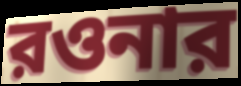
রওনার